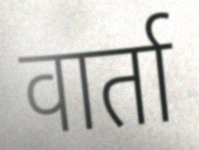
वार्ता